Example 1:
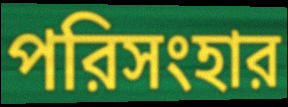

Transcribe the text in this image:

পরিসংহার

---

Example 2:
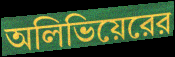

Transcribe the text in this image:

অলিভিয়েরের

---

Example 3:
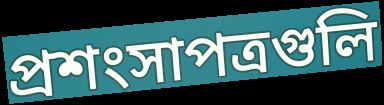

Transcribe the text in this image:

প্রশংসাপত্রগুলি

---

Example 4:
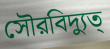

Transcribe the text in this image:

সৌরবিদ্যুত্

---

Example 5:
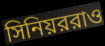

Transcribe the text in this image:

সিনিয়ররাও